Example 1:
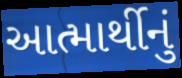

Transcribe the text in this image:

આત્માર્થીનું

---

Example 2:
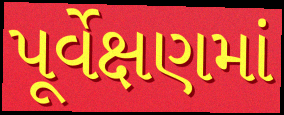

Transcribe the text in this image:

પૂર્વેક્ષણમાં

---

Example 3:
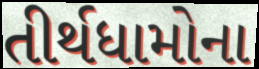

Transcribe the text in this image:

તીર્થધામોના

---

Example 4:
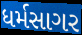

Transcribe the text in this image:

ધર્મસાગર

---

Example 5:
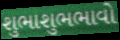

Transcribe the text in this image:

શુભાશુભભાવો